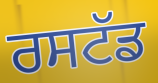
ਰਸਟੱਡ